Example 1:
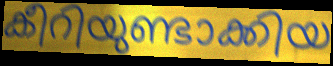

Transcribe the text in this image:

കീറിയുണ്ടാക്കിയ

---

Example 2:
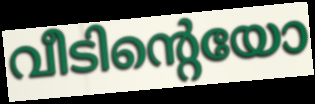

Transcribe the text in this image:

വീടിന്റെയോ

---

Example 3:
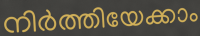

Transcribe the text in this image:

നിർത്തിയേക്കാം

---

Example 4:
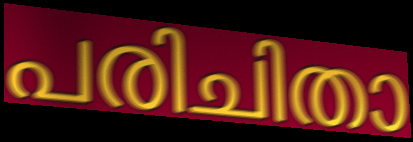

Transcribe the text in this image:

പരിചിതാ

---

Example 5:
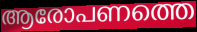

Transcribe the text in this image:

ആരോപണത്തെ